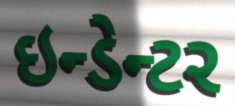
ઇન્ડેન્ટર